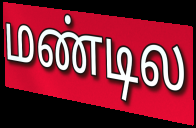
மண்டில